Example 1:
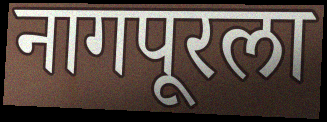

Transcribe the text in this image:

नागपूरला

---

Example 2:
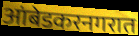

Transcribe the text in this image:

आंबेडकरनगरात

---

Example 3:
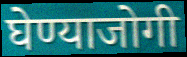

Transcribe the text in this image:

घेण्याजोगी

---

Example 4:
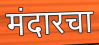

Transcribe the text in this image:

मंदारचा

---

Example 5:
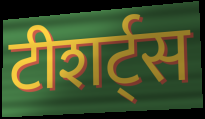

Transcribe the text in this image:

टीशर्ट्स